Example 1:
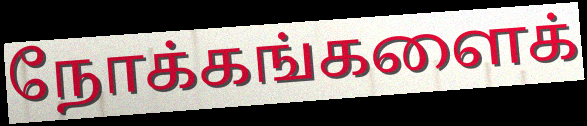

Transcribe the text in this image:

நோக்கங்களைக்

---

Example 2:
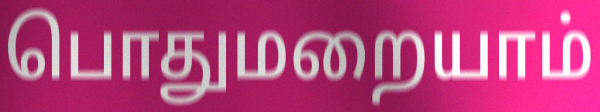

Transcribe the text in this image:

பொதுமறையாம்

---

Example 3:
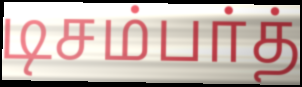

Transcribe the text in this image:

டிசம்பர்த்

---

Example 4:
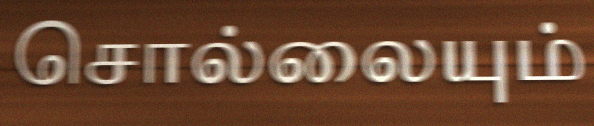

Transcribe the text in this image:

சொல்லையும்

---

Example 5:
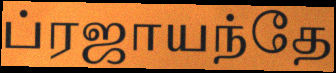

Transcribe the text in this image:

ப்ரஜாயந்தே